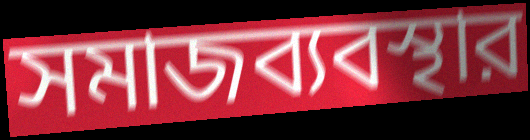
সমাজব্যবস্থার